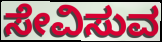
ಸೇವಿಸುವ